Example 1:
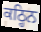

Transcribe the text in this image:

ਕਠ੍ਹਿਨ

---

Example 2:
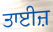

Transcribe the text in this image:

ਤਾਈਜ਼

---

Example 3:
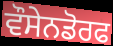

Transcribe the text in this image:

ਵੌਸੇਨਡੋਰਫ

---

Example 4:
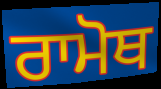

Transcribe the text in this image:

ਰਾਮੋਥ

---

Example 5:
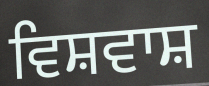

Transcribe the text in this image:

ਵਿਸ਼ਵਾਸ਼